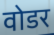
वोडर